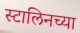
स्टालिनच्या